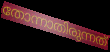
തോന്നാതിരുന്നത്